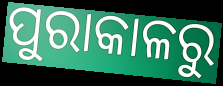
ପୁରାକାଳରୁ